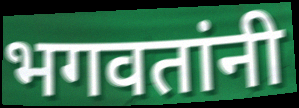
भगवतांनी